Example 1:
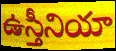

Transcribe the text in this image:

ఉస్తీనియా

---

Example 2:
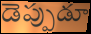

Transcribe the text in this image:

డెప్పుడూ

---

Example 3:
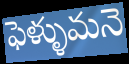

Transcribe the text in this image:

ఫెళ్ళుమనె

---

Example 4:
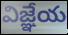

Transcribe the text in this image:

విజ్ఞేయ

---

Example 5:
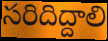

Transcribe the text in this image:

సరిదిద్దాలి